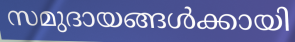
സമുദായങ്ങൾക്കായി